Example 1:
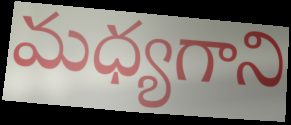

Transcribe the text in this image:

మధ్యగాని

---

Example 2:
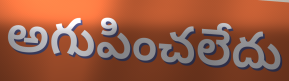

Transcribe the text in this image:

అగుపించలేదు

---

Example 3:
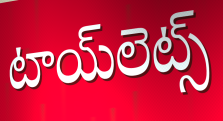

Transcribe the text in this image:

టాయ్‌లెట్స్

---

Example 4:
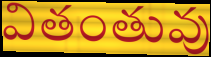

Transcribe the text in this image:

వితంతువు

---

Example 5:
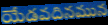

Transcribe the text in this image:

యేడవదినమున